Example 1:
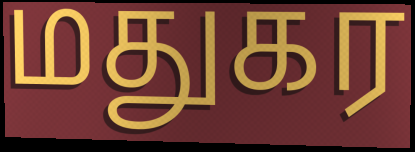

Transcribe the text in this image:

மதுகர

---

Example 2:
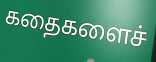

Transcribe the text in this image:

கதைகளைச்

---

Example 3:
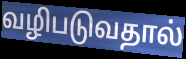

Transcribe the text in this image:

வழிபடுவதால்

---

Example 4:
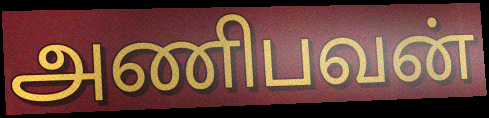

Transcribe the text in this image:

அணிபவன்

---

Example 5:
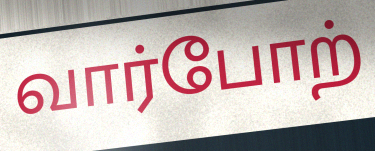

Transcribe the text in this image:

வார்போற்